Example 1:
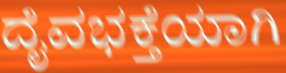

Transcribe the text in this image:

ದೈವಭಕ್ತೆಯಾಗಿ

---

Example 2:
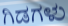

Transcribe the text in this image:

ಗಿಡಗಳು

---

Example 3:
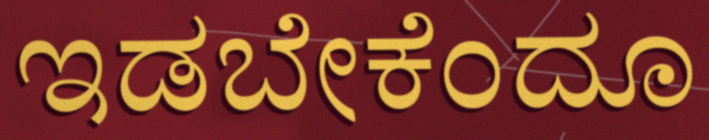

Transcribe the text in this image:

ಇಡಬೇಕೆಂದೂ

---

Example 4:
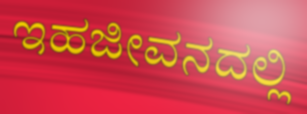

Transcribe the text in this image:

ಇಹಜೀವನದಲ್ಲಿ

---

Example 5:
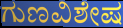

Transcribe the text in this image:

ಗುಣವಿಶೇಷ